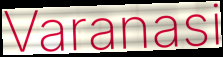
Varanasi